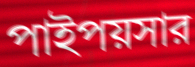
পাইপয়সার